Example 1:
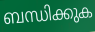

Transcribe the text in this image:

ബന്ധിക്കുക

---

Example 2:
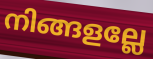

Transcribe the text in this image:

നിങ്ങളല്ലേ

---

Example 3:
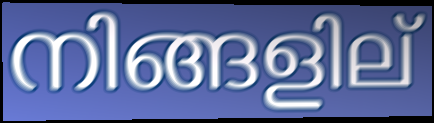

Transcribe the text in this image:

നിങ്ങളില്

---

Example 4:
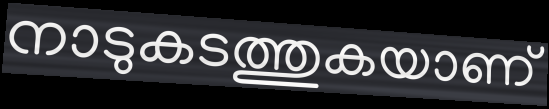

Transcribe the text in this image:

നാടുകടത്തുകയാണ്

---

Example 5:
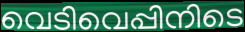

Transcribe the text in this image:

വെടിവെപ്പിനിടെ